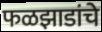
फळझाडांचे